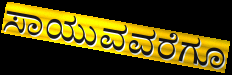
ಸಾಯುವವರೆಗೂ